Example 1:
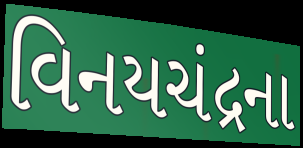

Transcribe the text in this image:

વિનયચંદ્રના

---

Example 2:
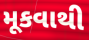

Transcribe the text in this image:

મૂકવાથી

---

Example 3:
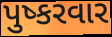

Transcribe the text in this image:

પુષ્કરવાર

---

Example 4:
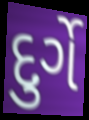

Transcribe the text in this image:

દુર્ગે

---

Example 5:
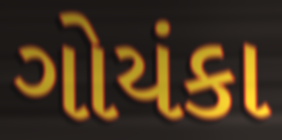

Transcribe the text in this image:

ગોયંકા